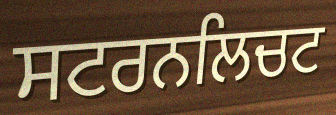
ਸਟਰਨਲਿਚਟ